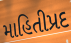
માહિતીપ્રદ